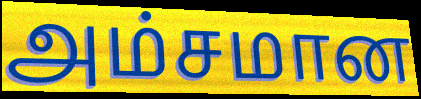
அம்சமான